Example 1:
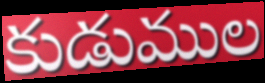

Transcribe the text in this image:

కుడుముల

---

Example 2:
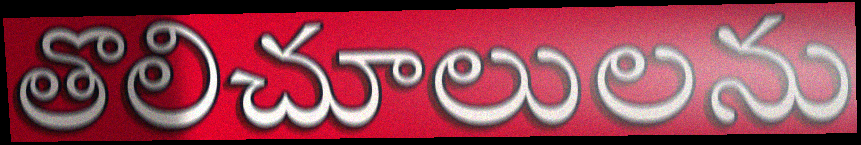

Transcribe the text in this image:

తొలిచూలులను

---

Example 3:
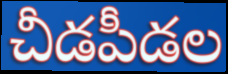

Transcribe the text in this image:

చీడపీడల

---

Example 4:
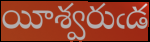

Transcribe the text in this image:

యీశ్వరుఁడ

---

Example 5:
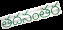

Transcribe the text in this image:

తదనంతర